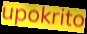
upokrito